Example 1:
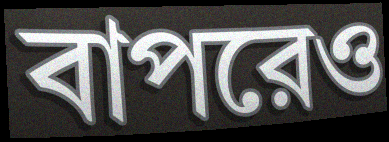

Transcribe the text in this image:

বাপরেও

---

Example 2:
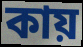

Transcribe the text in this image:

কায়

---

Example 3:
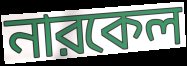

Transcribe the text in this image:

নারকেল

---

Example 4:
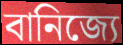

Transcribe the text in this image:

বানিজ্যে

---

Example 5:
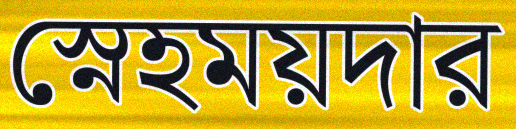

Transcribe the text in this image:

স্নেহময়দার